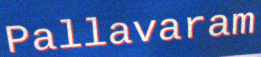
Pallavaram